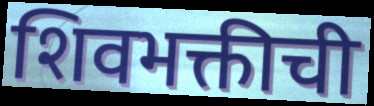
शिवभक्तीची